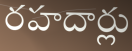
రహదార్లు